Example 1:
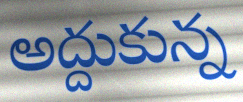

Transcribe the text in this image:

అద్దుకున్న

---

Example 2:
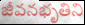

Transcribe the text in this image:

జీవనభృతిని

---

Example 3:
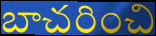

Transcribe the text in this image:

బాచరించి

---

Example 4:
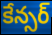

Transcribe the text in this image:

కేన్సర్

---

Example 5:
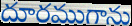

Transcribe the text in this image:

దూరముగాను